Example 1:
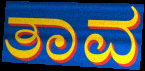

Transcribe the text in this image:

ತಾವ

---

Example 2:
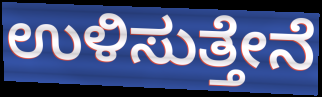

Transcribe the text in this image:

ಉಳಿಸುತ್ತೇನೆ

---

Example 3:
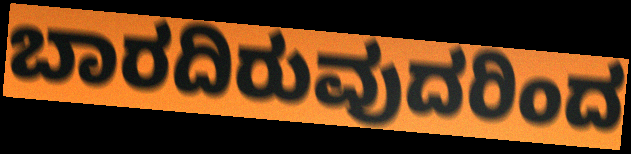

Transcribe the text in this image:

ಬಾರದಿರುವುದರಿಂದ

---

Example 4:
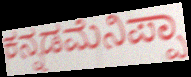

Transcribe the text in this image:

ಕನ್ನಡಮೆನಿಪ್ಪಾ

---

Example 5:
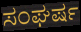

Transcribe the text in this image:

ಸಂಘರ್ಷ